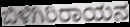
ಬಿಳಿಗಿರಿರಾಯನ